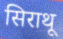
सिराथू